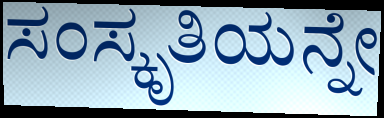
ಸಂಸ್ಕೃತಿಯನ್ನೇ